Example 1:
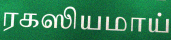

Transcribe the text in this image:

ரகஸியமாய்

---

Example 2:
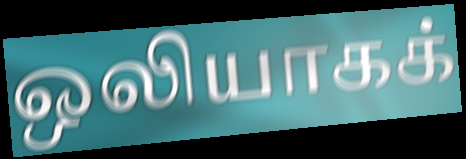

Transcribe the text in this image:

ஒலியாகக்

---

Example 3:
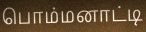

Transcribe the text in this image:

பொம்மனாட்டி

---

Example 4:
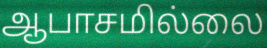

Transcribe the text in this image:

ஆபாசமில்லை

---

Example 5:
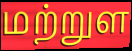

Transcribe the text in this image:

மற்றுள